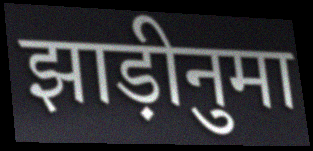
झाड़ीनुमा